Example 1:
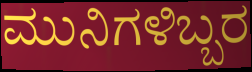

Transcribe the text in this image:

ಮುನಿಗಳಿಬ್ಬರ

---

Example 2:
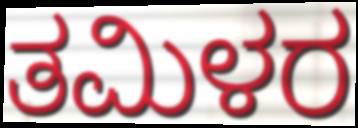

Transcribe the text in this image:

ತಮಿಳರ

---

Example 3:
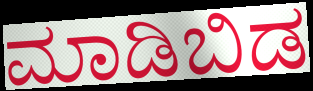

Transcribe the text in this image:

ಮಾಡಿಬಿಡ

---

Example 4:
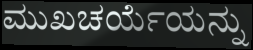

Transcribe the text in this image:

ಮುಖಚರ್ಯೆಯನ್ನು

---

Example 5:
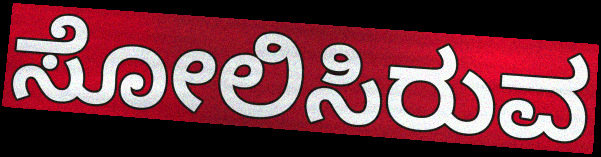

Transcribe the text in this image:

ಸೋಲಿಸಿರುವ